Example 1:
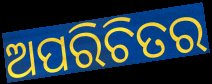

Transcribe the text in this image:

ଅପରିଚିତର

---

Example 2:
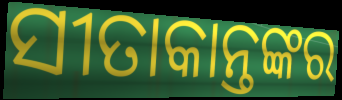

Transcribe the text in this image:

ସୀତାକାନ୍ତଙ୍କର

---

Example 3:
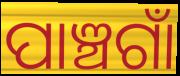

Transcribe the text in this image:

ପାଞ୍ଚଗାଁ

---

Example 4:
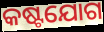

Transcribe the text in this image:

କଷ୍ଟଯୋଗ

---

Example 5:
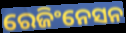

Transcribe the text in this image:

ରେଜିଂନେସନ